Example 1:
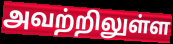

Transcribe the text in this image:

அவற்றிலுள்ள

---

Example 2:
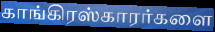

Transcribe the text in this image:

காங்கிரஸ்காரர்களை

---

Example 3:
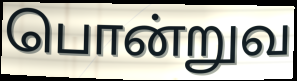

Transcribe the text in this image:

பொன்றுவ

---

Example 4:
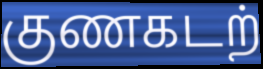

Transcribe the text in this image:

குணகடற்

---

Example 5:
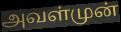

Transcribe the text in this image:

அவள்முன்